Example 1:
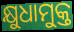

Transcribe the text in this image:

କ୍ଷୁଧାମୁକ୍ତ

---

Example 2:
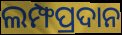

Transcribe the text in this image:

ଲମ୍ଫପ୍ରଦାନ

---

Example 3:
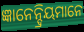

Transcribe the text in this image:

ଜ୍ଞାନେନ୍ଦ୍ରିୟମାନେ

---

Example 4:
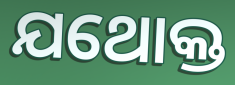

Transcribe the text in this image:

ଯଥୋକ୍ତ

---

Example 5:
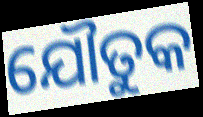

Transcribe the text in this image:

ଯୌତୁକ